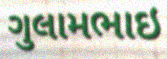
ગુલામભાઇ